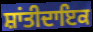
ਸ਼ਾਂਤੀਦਾਇਕ